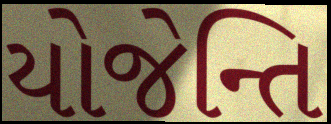
યોજેન્તિ